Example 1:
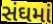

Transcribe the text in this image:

સંઘમાં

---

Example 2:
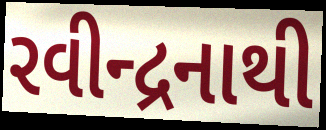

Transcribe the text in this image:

રવીન્દ્રનાથી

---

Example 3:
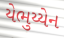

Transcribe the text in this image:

યેભુય્યેન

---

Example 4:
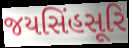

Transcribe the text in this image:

જયસિંહસૂરિ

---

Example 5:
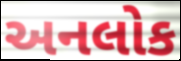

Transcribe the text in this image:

અનલોક